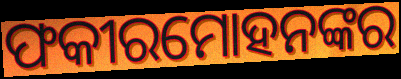
ଫକୀରମୋହନଙ୍କର